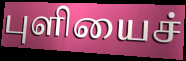
புளியைச்